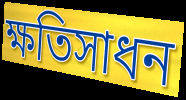
ক্ষতিসাধন